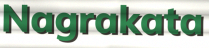
Nagrakata